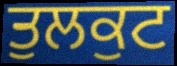
ਤੁਲਕੁਟ